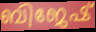
ബിജേഷ്